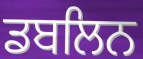
ਡਬਲਿਨ